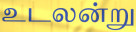
உடலன்று